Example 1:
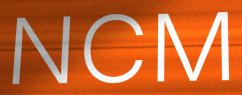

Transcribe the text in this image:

NCM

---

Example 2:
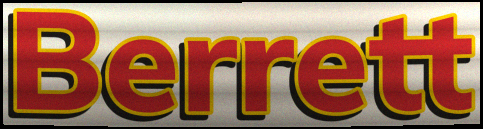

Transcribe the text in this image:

Berrett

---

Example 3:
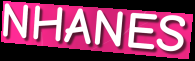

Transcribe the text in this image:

NHANES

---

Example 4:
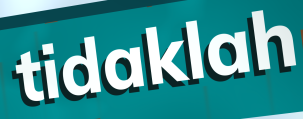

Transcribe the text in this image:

tidaklah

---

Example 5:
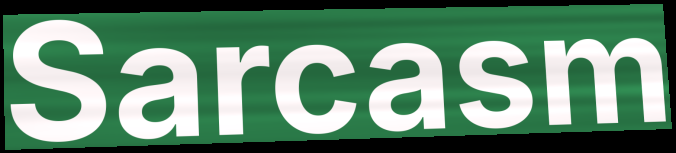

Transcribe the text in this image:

Sarcasm